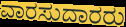
ವಾರಸುದಾರರು